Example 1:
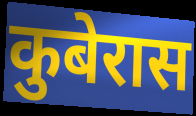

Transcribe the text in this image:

कुबेरास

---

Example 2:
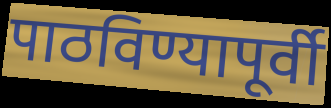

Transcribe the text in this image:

पाठविण्यापूर्वी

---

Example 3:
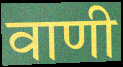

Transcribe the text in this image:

वाणी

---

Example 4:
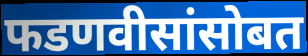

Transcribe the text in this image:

फडणवीसांसोबत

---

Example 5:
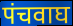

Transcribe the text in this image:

पंचवाघ